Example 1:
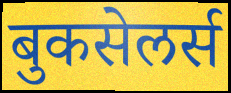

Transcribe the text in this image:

बुकसेलर्स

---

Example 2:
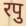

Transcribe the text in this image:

रपु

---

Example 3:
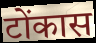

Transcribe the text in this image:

टोंकास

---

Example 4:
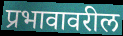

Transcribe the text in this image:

प्रभावावरील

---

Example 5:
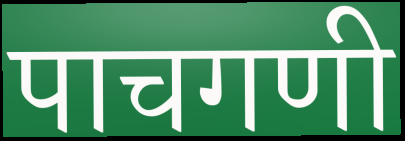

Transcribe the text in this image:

पाचगणी